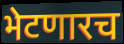
भेटणारच